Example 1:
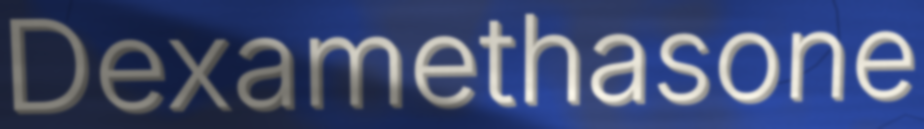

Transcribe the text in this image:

Dexamethasone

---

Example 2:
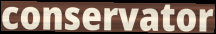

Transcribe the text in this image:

conservator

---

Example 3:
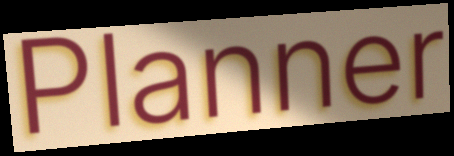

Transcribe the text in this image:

Planner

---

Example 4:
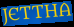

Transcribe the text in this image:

JETTHA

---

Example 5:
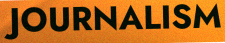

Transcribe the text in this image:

JOURNALISM